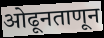
ओढूनताणून